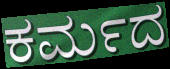
ಕರ್ಮದ